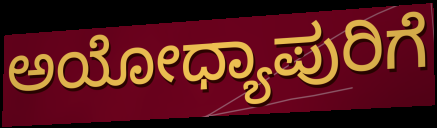
ಅಯೋಧ್ಯಾಪುರಿಗೆ